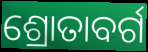
ଶ୍ରୋତାବର୍ଗ